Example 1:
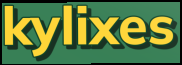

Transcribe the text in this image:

kylixes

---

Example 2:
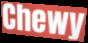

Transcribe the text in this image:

Chewy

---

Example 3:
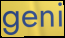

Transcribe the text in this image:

geni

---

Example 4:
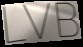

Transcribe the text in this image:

LVB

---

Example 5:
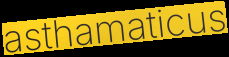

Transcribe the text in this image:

asthamaticus